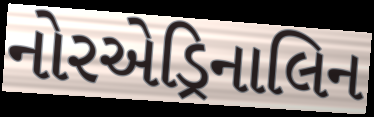
નોરએડ્રિનાલિન